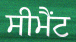
ਸੀਮੈਂਟ